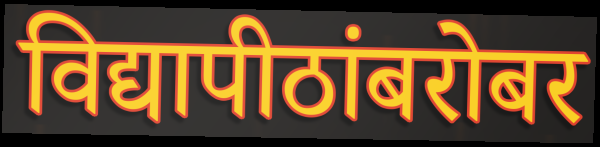
विद्यापीठांबरोबर